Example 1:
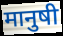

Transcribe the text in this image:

मानुषी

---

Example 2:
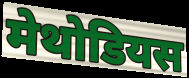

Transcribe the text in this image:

मेथोडियस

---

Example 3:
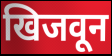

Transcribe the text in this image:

खिजवून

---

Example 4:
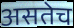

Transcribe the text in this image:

असतेच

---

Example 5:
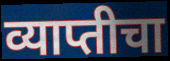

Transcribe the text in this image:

व्याप्तीचा